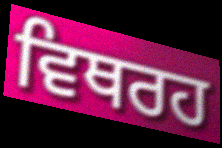
ਵਿਥਰਹ